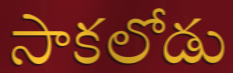
సాకలోడు